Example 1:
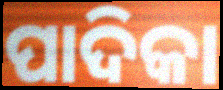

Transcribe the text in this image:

ପାଦିକା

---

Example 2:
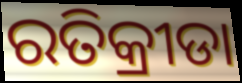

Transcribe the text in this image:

ରତିକ୍ରୀଡା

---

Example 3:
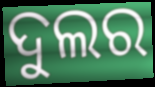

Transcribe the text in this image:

ଦୁଲର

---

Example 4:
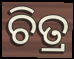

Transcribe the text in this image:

ଚିତ୍ର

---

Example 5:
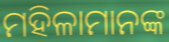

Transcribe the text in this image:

ମହିଳାମାନଙ୍କ